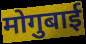
मोगुबाई